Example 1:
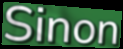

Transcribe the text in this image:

Sinon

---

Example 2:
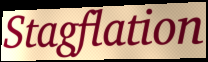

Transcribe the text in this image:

Stagflation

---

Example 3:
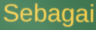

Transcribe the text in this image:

Sebagai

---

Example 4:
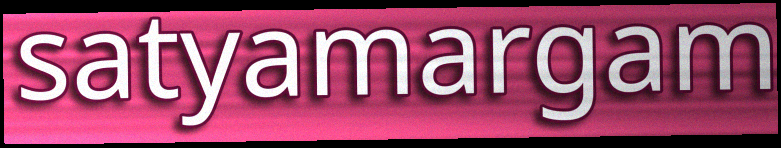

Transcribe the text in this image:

satyamargam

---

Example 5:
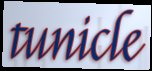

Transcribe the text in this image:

tunicle